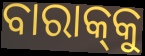
ବାରାକ୍‌କୁ